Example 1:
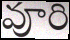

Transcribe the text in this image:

వూరి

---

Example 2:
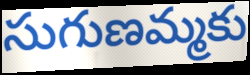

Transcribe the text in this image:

సుగుణమ్మకు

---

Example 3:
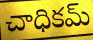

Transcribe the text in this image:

చాధికమ్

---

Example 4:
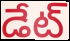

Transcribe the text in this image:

డేట్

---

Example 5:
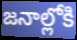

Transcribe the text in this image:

జనాల్లోకి